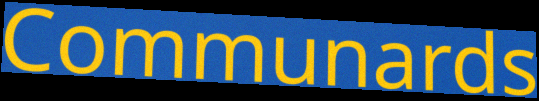
Communards